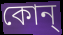
কোন্